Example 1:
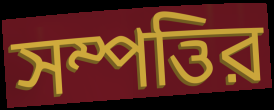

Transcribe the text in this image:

সম্পত্তির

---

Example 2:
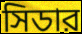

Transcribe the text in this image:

সিডার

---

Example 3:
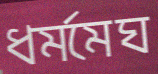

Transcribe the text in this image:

ধর্মমেঘ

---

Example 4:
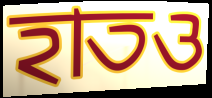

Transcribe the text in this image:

হাতও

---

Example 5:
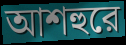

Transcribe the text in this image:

আশহুরে